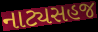
નાટ્યસહજ